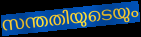
സന്തതിയുടെയും